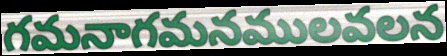
గమనాగమనములవలన